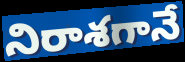
నిరాశగానే